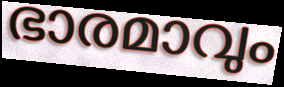
ഭാരമാവും